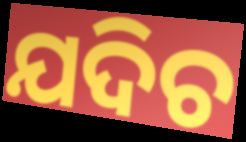
ଯଦିଚ